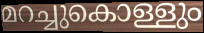
മറച്ചുകൊള്ളും